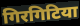
गिरगिटिया